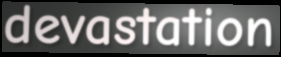
devastation